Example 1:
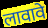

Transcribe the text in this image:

लावावे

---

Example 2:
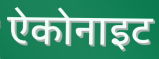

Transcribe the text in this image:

ऐकोनाइट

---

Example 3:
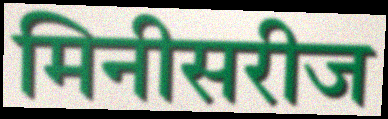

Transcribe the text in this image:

मिनीसरीज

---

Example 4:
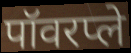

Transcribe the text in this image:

पॉवरप्ले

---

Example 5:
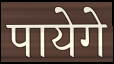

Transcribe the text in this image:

पायेगे